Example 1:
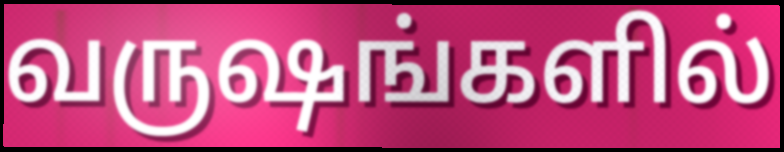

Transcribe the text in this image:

வருஷங்களில்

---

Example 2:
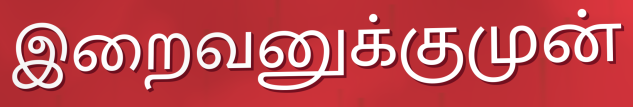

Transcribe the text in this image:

இறைவனுக்குமுன்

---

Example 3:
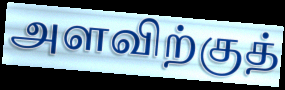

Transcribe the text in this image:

அளவிற்குத்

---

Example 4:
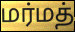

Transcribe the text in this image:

மர்மத்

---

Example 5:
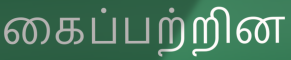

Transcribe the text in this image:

கைப்பற்றின